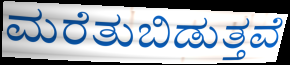
ಮರೆತುಬಿಡುತ್ತವೆ